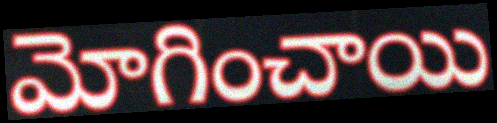
మోగించాయి